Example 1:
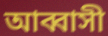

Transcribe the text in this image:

আব্বাসী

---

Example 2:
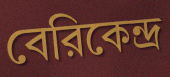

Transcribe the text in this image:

বেরিকেন্দ্র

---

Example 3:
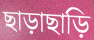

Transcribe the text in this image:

ছাড়াছাড়ি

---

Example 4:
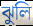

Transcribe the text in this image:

ঝুলি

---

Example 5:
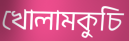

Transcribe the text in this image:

খোলামকুচি